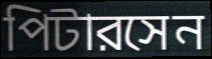
পিটারসেন